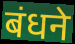
बंधने